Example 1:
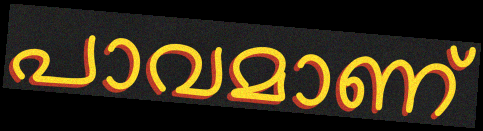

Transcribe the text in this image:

പാവമാണ്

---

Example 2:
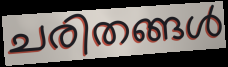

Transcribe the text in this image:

ചരിതങ്ങൾ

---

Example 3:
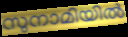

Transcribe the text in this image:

സുനാമിയിൽ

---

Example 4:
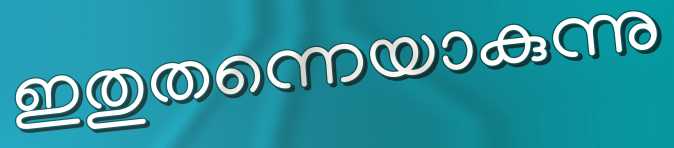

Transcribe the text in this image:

ഇതുതന്നെയാകുന്നു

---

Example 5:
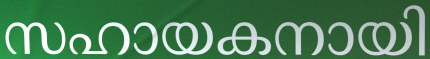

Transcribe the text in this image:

സഹായകനായി